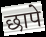
छापे